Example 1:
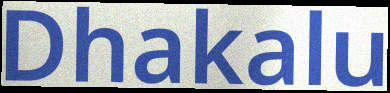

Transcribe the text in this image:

Dhakalu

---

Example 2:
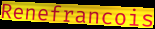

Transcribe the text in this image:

Renefrancois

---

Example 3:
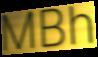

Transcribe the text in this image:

MBh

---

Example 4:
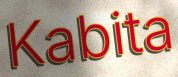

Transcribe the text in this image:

Kabita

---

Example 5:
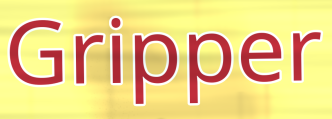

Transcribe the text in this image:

Gripper